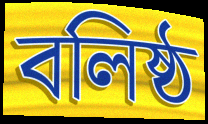
বলিষ্ঠ